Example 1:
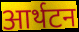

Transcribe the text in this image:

आर्थटन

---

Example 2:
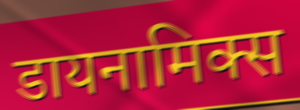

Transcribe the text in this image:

डायनामिक्स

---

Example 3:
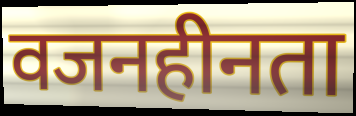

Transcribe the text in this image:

वजनहीनता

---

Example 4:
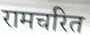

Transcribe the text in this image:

रामचरित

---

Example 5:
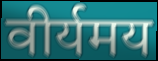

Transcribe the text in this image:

वीर्यमय